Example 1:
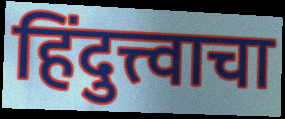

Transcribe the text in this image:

हिंदुत्त्वाचा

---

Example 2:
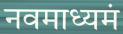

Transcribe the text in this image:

नवमाध्यमं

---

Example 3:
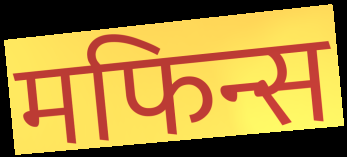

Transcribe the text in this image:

मफिन्स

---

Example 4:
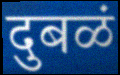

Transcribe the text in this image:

दुबळं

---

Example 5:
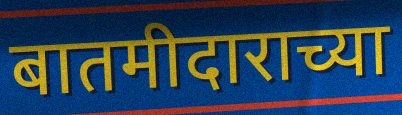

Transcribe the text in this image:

बातमीदाराच्या